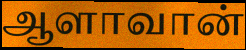
ஆளாவான்